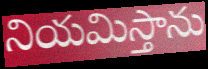
నియమిస్తాను